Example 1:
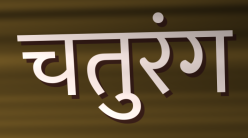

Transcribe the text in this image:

चतुरंग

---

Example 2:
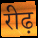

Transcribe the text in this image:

रीढ़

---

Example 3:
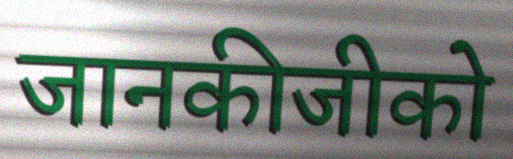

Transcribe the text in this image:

जानकीजीको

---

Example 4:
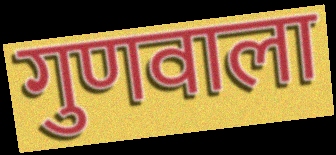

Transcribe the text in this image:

गुणवाला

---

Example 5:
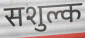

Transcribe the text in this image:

सशुल्क